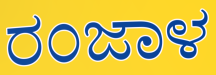
ರಂಜಾಳ